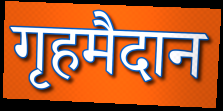
गृहमैदान